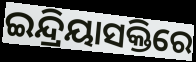
ଇନ୍ଦ୍ରିୟାସକ୍ତିରେ